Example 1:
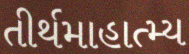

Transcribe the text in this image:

તીર્થમાહાત્મ્ય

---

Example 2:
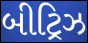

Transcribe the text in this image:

બીટ્રિઝ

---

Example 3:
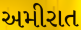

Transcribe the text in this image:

અમીરાત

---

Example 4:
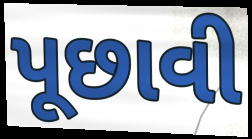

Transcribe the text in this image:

પૂછાવી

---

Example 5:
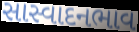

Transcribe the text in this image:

સાસ્વાદનભાવ